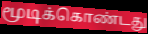
மூடிக்கொண்டது